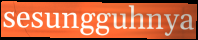
sesungguhnya